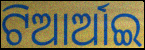
ଟିଆର୍ଆଇ